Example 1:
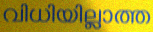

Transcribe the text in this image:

വിധിയില്ലാത്ത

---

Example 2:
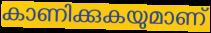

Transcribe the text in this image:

കാണിക്കുകയുമാണ്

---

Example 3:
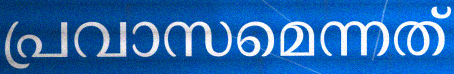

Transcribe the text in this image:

പ്രവാസമെന്നത്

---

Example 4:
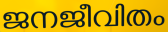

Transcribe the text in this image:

ജനജീവിതം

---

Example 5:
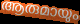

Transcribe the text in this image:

ആരുമായും